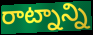
రాట్నాన్ని